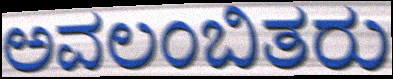
ಅವಲಂಬಿತರು